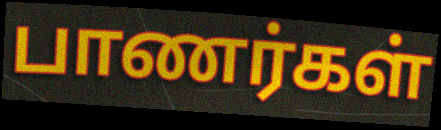
பாணர்கள்